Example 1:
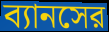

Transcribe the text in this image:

ব্যানসের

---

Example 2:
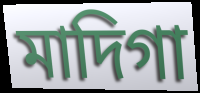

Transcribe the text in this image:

মাদিগা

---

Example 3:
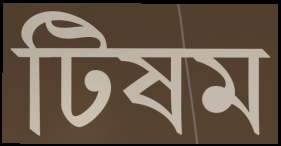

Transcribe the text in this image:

টিষম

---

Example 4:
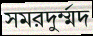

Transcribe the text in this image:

সমরদুর্ম্মদ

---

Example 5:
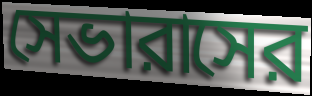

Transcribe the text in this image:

সেভারাসের